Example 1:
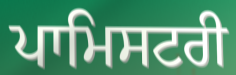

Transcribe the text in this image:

ਪਾਮਿਸਟਰੀ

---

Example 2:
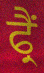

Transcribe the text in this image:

ਫ੍ਰੈਂ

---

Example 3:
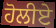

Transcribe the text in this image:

ਹੋਲੀਏ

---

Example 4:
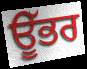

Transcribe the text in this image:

ਊੱਭਰ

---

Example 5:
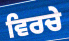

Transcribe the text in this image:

ਵਿਰਚੇ